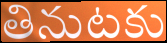
తినుటకు